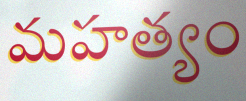
మహత్యం